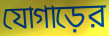
যোগাড়ের